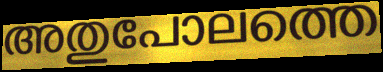
അതുപോലത്തെ